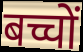
बच्चों